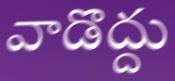
వాడొద్దు